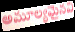
అమూల్యమైనవి